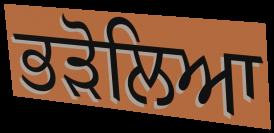
ਭੜੋਲਿਆ